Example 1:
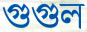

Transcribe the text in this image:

গুগুল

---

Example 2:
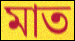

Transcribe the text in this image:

মাত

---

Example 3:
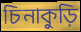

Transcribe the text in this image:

চিনাকুড়ি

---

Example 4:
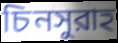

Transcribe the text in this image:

চিনসুরাহ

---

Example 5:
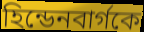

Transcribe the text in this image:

হিন্ডেনবার্গকে